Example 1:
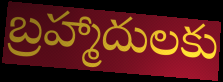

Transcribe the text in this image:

బ్రహ్మాదులకు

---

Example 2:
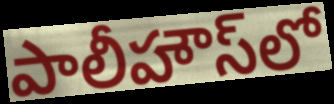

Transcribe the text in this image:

పాలీహౌస్‌లో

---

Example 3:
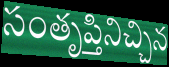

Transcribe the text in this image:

సంతృప్తినిచ్చిన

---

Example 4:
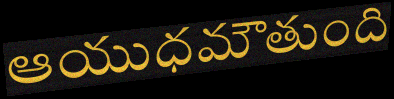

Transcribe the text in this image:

ఆయుధమౌతుంది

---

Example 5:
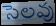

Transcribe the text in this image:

సెలవు